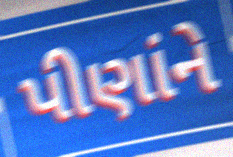
પીણાંને